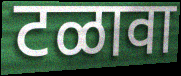
टळावा